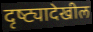
दृष्ट्यादेखील